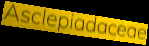
Asclepiadaceae